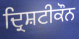
ਦ੍ਰਿਸ਼ਟੀਕੌਨ